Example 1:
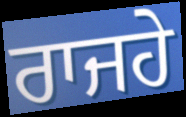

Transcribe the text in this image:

ਰਾਜਹੇ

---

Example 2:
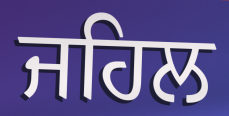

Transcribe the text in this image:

ਜਹਿਲ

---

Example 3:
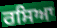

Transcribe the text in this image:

ਰਸਿਆ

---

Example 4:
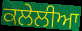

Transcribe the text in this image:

ਕਲੇਲੀਆ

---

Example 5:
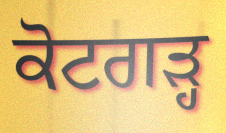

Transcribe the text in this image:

ਕੋਟਗੜ੍ਹ